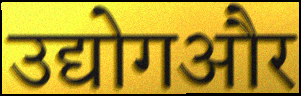
उद्योगऔर